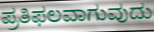
ಪ್ರತಿಫಲವಾಗುವುದು